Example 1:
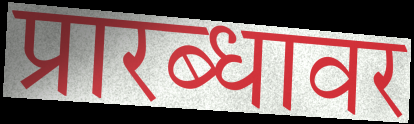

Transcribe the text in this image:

प्रारब्धावर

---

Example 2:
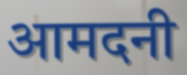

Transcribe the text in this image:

आमदनी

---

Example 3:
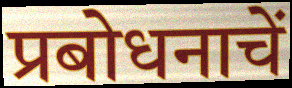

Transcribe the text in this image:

प्रबोधनाचें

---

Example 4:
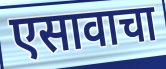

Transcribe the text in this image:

एसावाचा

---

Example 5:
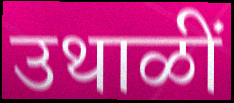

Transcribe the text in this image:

उथाळीं